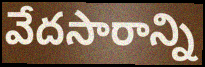
వేదసారాన్ని